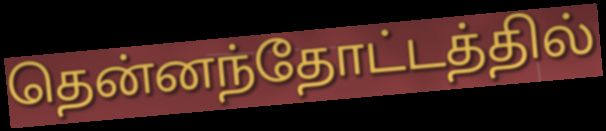
தென்னந்தோட்டத்தில்